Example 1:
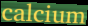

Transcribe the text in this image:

calcium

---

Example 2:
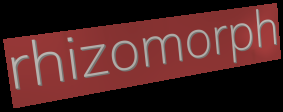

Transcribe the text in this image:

rhizomorph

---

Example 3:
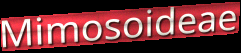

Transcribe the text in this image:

Mimosoideae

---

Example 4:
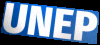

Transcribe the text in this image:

UNEP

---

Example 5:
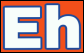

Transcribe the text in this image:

Eh